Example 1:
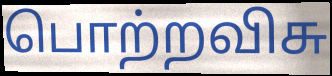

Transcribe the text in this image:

பொற்றவிசு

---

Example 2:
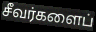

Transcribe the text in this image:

சீவர்களைப்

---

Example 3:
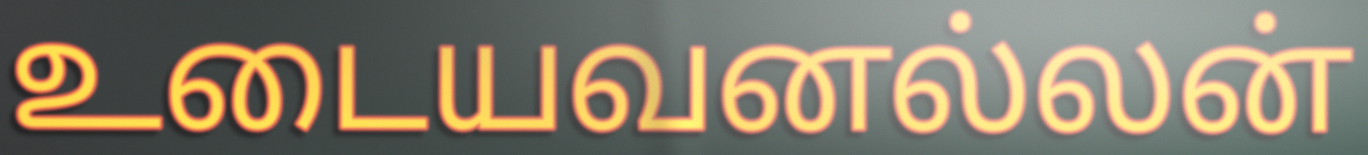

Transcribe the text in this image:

உடையவனல்லன்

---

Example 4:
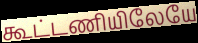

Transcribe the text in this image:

கூட்டணியிலேயே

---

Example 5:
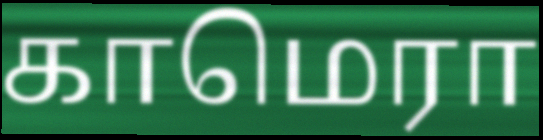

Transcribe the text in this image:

காமெரா